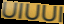
UIUUI